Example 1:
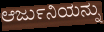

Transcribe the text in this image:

ಆರ್ಜುನಿಯನ್ನು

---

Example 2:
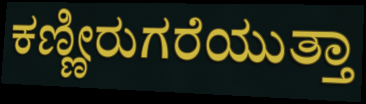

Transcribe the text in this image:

ಕಣ್ಣೀರುಗರೆಯುತ್ತಾ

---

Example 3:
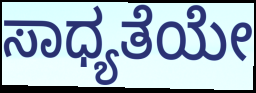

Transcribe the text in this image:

ಸಾಧ್ಯತೆಯೇ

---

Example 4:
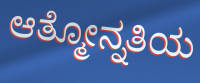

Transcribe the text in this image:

ಆತ್ಮೋನ್ನತಿಯ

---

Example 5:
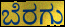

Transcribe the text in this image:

ಬೆರಗು